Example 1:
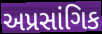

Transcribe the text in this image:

અપ્રસાંગિક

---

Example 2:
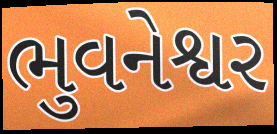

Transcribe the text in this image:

ભુવનેશ્વર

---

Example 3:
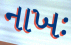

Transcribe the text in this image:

નાખઃ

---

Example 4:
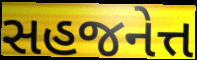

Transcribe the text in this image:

સહજનેત્ત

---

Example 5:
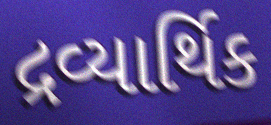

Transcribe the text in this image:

દ્રવ્યાર્થિક